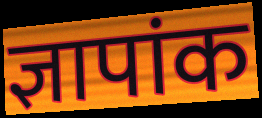
ज्ञापांक